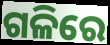
ଗଳିରେ